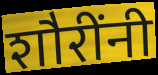
शौरींनी